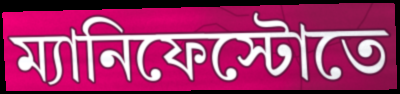
ম্যানিফেস্টোতে